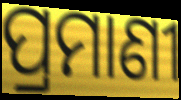
ପ୍ରମାଣୀ